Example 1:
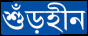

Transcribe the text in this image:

শুঁড়হীন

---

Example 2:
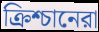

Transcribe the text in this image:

ক্রিশ্চানেরা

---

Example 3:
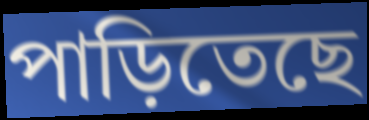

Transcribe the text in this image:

পাড়িতেছে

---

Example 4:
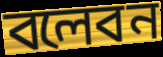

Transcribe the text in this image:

বলেবন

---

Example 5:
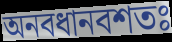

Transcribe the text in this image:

অনবধানবশতঃ